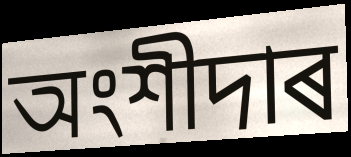
অংশীদাৰ